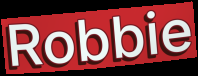
Robbie